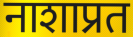
नाशाप्रत